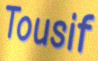
Tousif